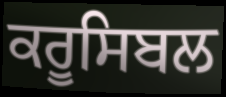
ਕਰੂਸਿਬਲ